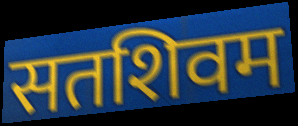
सतशिवम